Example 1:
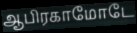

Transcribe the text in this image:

ஆபிரகாமோடே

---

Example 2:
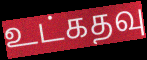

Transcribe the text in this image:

உட்கதவு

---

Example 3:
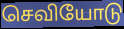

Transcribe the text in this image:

செவியோடு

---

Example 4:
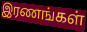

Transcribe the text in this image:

இரணங்கள்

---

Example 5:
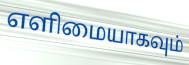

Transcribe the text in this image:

எளிமையாகவும்